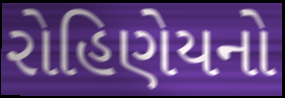
રોહિણેયનો